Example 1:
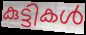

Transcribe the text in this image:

കുട്ടികൾ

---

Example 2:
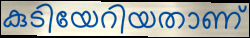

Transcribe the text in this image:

കുടിയേറിയതാണ്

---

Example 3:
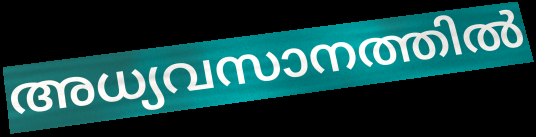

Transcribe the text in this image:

അധ്യവസാനത്തിൽ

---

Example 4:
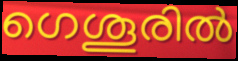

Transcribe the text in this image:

ഗെശൂരിൽ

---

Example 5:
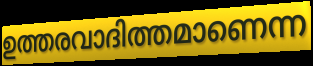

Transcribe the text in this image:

ഉത്തരവാദിത്തമാണെന്ന